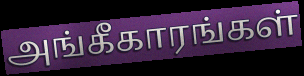
அங்கீகாரங்கள்